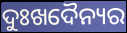
ଦୁଃଖଦୈନ୍ୟର